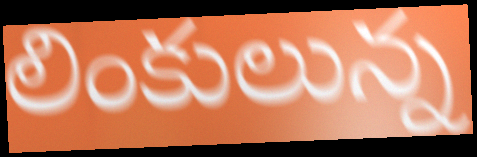
లింకులున్న